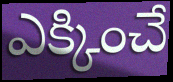
ఎక్కించే